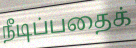
நீடிப்பதைக்